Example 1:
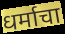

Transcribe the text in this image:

धर्माचा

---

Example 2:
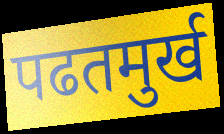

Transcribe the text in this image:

पढतमुर्ख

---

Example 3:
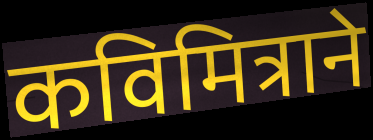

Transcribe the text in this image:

कविमित्राने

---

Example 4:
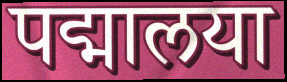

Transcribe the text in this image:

पद्मालया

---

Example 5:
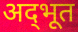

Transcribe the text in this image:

अद्‌भूत